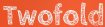
Twofold